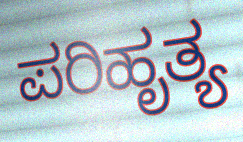
ಪರಿಹೃತ್ಯ